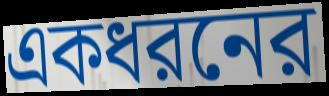
একধরনের